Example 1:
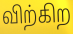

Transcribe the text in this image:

விற்கிற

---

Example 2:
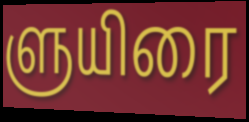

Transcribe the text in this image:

ளுயிரை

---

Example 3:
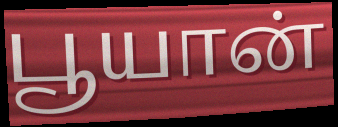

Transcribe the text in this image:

பூயான்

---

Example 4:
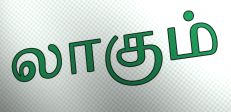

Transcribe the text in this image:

லாகும்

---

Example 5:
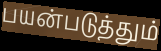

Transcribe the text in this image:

பயன்படுத்தும்